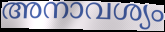
അനാവശ്യം